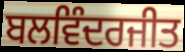
ਬਲਵਿੰਦਰਜੀਤ